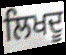
ਲਿਖਦੂ